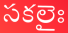
సకలైః